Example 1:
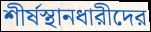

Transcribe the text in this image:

শীর্ষস্থানধারীদের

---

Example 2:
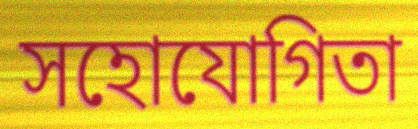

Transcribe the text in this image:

সহোযোগিতা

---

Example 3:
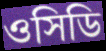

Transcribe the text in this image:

ওসিডি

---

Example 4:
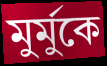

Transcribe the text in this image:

মুর্মুকে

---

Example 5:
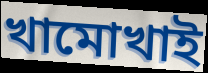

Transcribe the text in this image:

খামোখাই